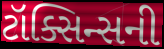
ટૉક્સિન્સની